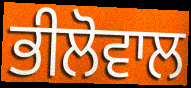
ਭੀਲੋਵਾਲ